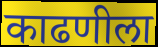
काढणीला